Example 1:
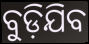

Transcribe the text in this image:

ବୁଡ଼ିଯିବ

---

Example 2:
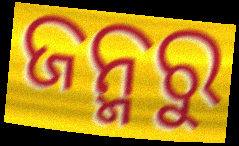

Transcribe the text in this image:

ଜନ୍ମରୁ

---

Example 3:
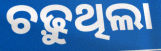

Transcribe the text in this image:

ଚଢ଼ୁଥିଲା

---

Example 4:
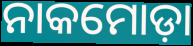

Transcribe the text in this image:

ନାକମୋଡ଼ା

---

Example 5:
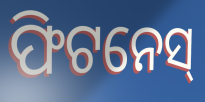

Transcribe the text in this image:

ଫିଟନେସ୍